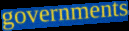
governments